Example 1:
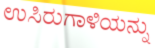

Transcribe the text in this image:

ಉಸಿರುಗಾಳಿಯನ್ನು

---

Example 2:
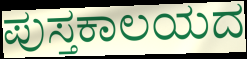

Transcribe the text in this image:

ಪುಸ್ತಕಾಲಯದ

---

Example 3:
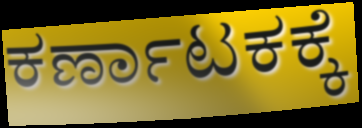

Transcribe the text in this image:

ಕರ್ಣಾಟಕಕ್ಕೆ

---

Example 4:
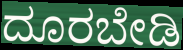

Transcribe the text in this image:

ದೂರಬೇಡಿ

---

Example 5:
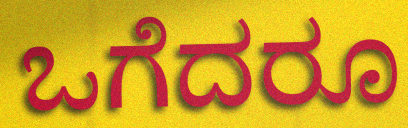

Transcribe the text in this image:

ಒಗೆದರೂ